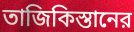
তাজিকিস্তানের